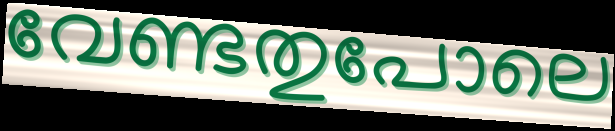
വേണ്ടതുപോലെ